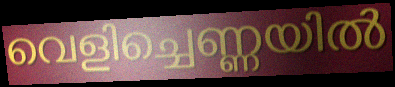
വെളിച്ചെണ്ണയിൽ